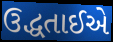
ઉદ્ધતાઈએ